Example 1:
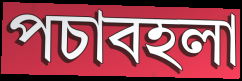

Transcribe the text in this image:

পচাবহলা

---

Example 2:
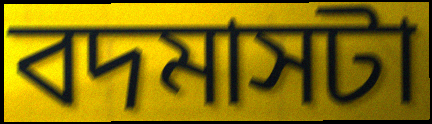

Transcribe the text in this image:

বদমাসটা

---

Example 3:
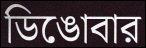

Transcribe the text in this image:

ডিঙোবার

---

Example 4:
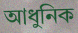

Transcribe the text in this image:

আধুনিক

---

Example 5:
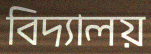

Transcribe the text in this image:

বিদ্যালয়